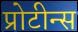
प्रोटीन्स